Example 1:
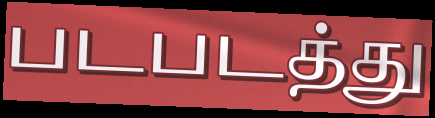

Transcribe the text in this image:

படபடத்து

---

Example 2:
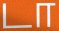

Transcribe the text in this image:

டா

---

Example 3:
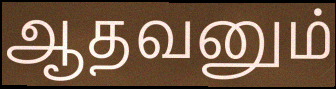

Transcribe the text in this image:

ஆதவனும்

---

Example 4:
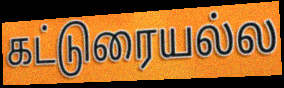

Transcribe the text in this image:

கட்டுரையல்ல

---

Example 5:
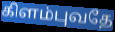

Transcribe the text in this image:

கிளம்புவதே